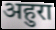
अहुरा